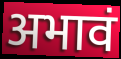
अभावं